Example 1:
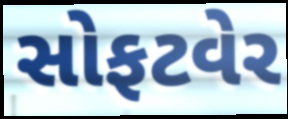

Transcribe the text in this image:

સોફટવેર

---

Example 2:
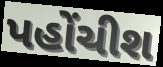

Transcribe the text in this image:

પહોંચીશ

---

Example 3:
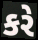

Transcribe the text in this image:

કરે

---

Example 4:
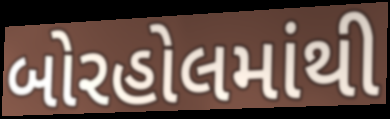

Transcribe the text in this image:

બોરહોલમાંથી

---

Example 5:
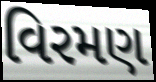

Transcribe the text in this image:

વિરમણ